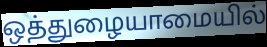
ஒத்துழையாமையில்